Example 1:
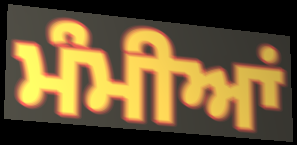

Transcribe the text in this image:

ਮੰਮੀਆਂ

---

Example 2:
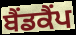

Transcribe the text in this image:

ਬੈਂਡਕੈਂਪ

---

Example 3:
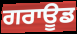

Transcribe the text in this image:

ਗਰਾਊਡ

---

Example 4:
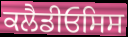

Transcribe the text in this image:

ਕਲੈਡੀਓਸਿਸ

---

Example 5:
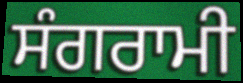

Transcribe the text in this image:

ਸੰਗਰਾਮੀ